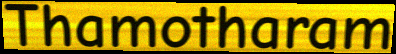
Thamotharam